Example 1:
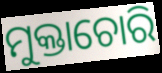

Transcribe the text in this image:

ମୁକ୍ତାଚୋରି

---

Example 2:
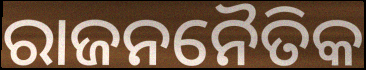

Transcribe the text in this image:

ରାଜନନୈତିକ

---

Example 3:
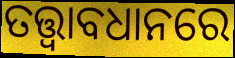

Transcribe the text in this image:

ତତ୍ତ୍ବାବଧାନରେ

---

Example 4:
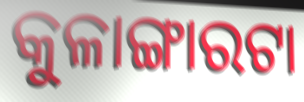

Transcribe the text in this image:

କୁଳାଙ୍ଗାରଟା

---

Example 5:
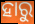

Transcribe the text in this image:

ହାରୁ